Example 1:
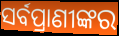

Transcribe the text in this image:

ସର୍ବପ୍ରାଣୀଙ୍କର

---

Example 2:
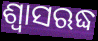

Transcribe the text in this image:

ଶ୍ୱାସଋଦ୍ଧ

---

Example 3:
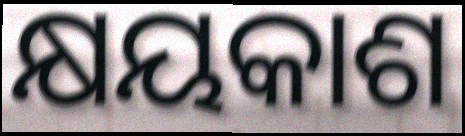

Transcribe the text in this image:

କ୍ଷୟକାଶ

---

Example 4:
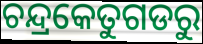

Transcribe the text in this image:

ଚନ୍ଦ୍ରକେତୁଗଡରୁ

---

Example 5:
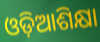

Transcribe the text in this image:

ଓଡ଼ିଆଶିକ୍ଷା